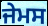
ਜੇਮਸ